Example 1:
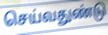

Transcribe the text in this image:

செய்வதுண்டு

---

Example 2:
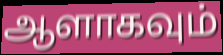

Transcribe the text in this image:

ஆளாகவும்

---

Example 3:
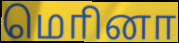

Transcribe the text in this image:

மெரினா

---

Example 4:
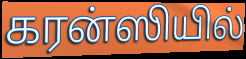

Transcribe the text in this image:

கரன்ஸியில்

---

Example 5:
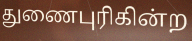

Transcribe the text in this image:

துணைபுரிகின்ற